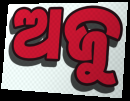
ଅଜୁ